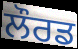
ਲੌਰਡ